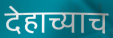
देहाच्याच